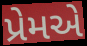
પ્રેમએ